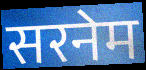
सरनेम